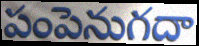
పంపెనుగదా